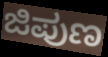
ಜಿಪುಣ